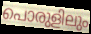
പൊരുളിലും